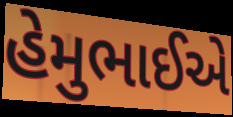
હેમુભાઈએ